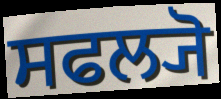
ਸਫਲ੍ਯੋ